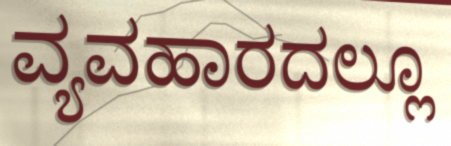
ವ್ಯವಹಾರದಲ್ಲೂ